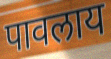
पावलाय